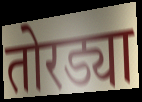
तोरड्या